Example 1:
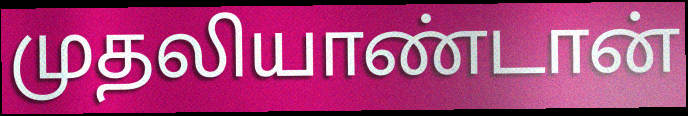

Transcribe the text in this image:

முதலியாண்டான்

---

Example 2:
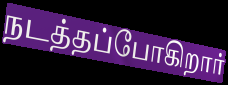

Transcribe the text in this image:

நடத்தப்போகிறார்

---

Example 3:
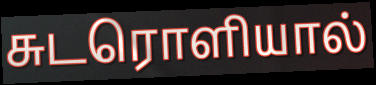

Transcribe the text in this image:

சுடரொளியால்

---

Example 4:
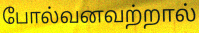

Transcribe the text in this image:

போல்வனவற்றால்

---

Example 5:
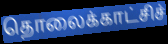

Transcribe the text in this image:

தொலைக்காட்சிச்